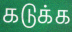
கடுக்க